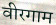
वीरगाम